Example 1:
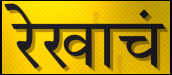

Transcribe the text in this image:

रेखाचं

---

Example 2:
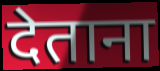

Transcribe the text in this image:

देताना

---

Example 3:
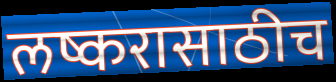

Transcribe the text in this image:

लष्करासाठीच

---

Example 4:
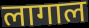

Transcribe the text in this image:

लागाल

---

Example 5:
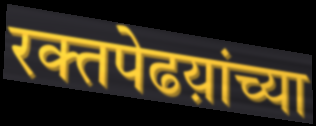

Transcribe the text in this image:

रक्तपेढय़ांच्या